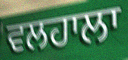
ਵਲਹਾਲਾ